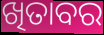
ଖିତାବର